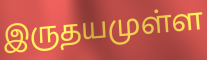
இருதயமுள்ள